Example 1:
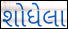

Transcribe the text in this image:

શોધેલા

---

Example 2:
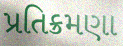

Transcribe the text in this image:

પ્રતિક્રમણા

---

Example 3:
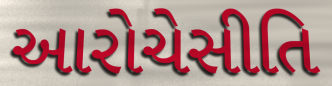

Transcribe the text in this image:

આરોચેસીતિ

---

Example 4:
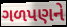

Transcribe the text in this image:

ગળપણને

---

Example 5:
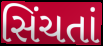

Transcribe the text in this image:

સિંચતાં